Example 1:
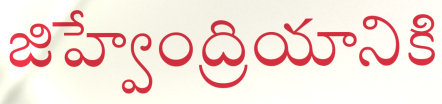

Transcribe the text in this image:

జిహ్వేంద్రియానికి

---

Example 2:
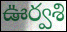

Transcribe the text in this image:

ఊర్వశి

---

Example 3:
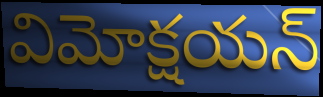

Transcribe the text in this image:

విమోక్షయన్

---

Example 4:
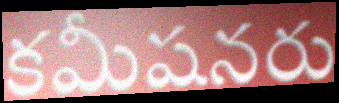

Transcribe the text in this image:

కమీషనరు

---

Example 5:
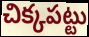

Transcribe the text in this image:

చిక్కపట్టు